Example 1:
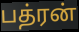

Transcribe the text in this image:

பத்ரன்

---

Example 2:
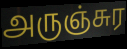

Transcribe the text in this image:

அருஞ்சுர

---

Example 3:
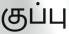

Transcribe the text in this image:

குப்பு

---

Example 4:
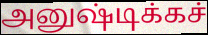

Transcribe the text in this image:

அனுஷ்டிக்கச்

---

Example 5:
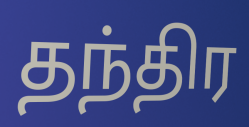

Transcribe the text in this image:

தந்திர